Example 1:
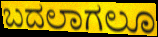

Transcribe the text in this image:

ಬದಲಾಗಲೂ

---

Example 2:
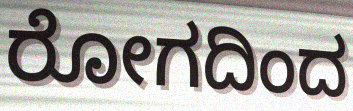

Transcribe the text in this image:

ರೋಗದಿಂದ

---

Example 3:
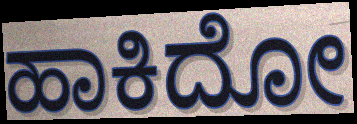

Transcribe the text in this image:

ಹಾಕಿದೋ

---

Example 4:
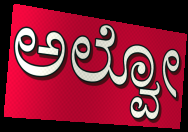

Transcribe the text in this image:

ಅಲ್ವೋ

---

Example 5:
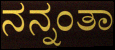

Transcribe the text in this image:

ನನ್ನಂತಾ